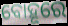
ବୋହୂରେ